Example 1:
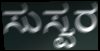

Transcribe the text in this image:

ಸುಸ್ವರ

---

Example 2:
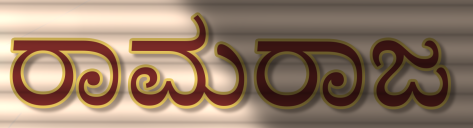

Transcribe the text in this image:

ರಾಮರಾಜ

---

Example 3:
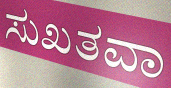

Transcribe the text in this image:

ಸುಖತವಾ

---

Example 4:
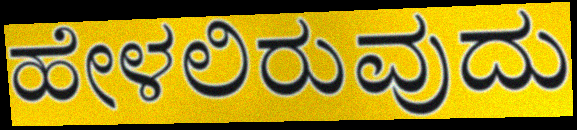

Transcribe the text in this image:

ಹೇಳಲಿರುವುದು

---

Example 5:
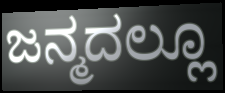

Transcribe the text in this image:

ಜನ್ಮದಲ್ಲೂ